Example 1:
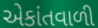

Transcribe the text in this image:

એકાંતવાળી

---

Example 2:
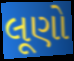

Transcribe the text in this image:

લૂણો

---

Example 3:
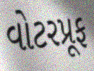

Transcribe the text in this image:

વોટરપ્રૂફ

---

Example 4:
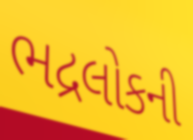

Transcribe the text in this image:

ભદ્રલોકની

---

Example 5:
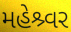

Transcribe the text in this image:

મહેશ્ર્વર